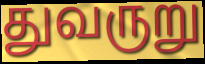
துவருறு